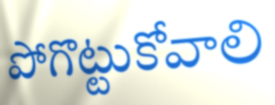
పోగొట్టుకోవాలి